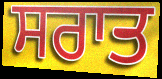
ਸਰਾਤ